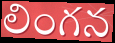
లింగన